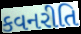
કવનરીતિ